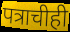
पत्राचीही